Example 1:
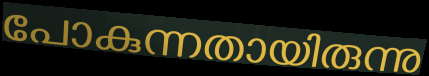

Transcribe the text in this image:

പോകുന്നതായിരുന്നു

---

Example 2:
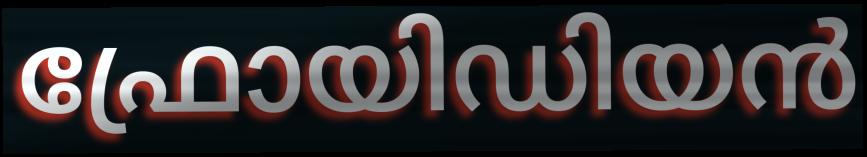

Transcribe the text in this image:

ഫ്രോയിഡിയൻ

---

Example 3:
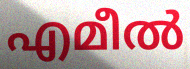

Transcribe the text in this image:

എമീൽ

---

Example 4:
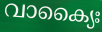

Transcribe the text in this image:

വാക്യൈഃ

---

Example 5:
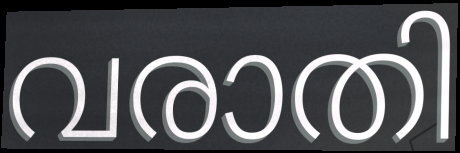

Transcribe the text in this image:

വരാതി